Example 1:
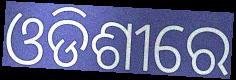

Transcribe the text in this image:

ଓଡିଶୀରେ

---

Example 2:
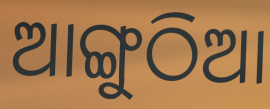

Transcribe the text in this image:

ଆଙ୍ଗୁଠିଆ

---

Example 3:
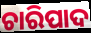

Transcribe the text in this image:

ଚାରିପାଦ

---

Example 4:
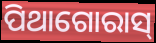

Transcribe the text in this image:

ପିଥାଗୋରାସ୍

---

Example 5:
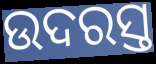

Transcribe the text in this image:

ଉଦରସ୍ତ